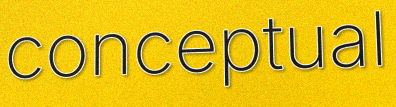
conceptual